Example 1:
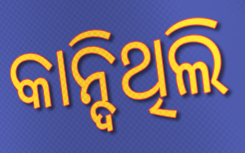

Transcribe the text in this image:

କାନ୍ଦିଥିଲି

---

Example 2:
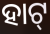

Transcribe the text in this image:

ହାଟ୍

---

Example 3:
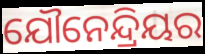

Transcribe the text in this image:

ଯୌନେନ୍ଦ୍ରିୟର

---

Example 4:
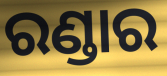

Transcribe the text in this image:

ରଣ୍ଡାର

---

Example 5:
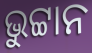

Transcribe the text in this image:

ଭୁଟ୍ଟାନ